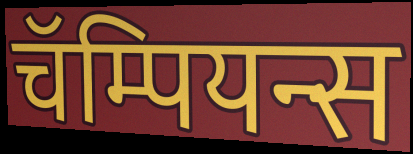
चॅम्पियन्स